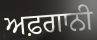
ਅਫ਼ਗਾਨੀ